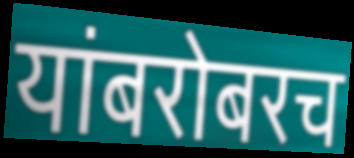
यांबरोबरच